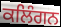
ਕਲਿੰਗਨ